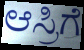
ಆಸ್ರಿಗೆ